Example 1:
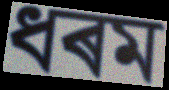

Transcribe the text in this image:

ধৰম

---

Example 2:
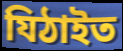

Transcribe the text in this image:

যিঠাইত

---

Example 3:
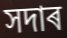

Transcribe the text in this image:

সদাৰ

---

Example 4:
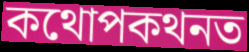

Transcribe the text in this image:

কথোপকথনত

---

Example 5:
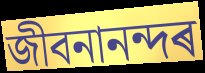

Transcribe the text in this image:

জীবনানন্দৰ